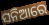
ସନିଆରେ